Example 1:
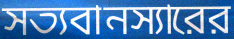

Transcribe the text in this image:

সত্যবানস্যারের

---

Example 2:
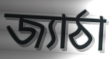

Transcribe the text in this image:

জ্যাঠা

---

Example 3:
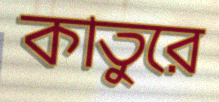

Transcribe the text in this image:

কাতুরে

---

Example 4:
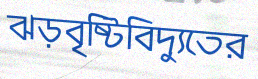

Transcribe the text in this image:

ঝড়বৃষ্টিবিদ্যুতের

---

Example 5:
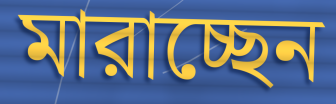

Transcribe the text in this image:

মারাচ্ছেন